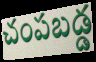
చంపబడ్డ